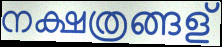
നക്ഷത്രങ്ങള്